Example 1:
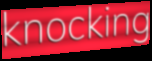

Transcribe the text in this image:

knocking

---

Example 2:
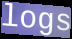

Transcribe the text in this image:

logs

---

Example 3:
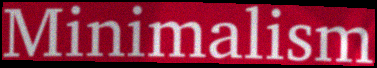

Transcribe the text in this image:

Minimalism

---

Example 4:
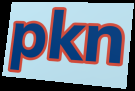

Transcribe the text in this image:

pkn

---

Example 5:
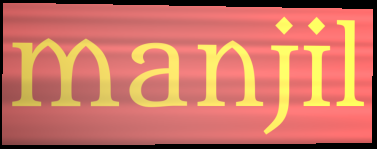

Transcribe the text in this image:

manjil